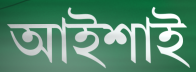
আইশাই